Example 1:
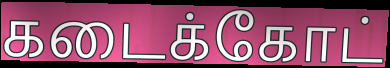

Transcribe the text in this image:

கடைக்கோட்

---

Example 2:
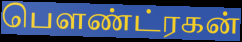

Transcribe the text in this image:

பௌண்ட்ரகன்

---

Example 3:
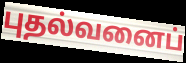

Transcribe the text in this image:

புதல்வனைப்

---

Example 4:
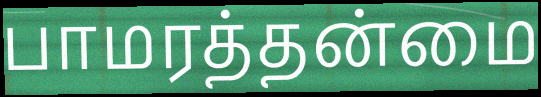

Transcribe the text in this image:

பாமரத்தன்மை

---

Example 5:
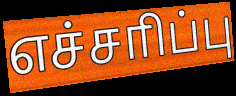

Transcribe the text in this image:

எச்சரிப்பு